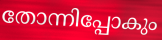
തോന്നിപ്പോകും